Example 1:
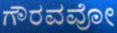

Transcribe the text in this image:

ಗೌರವವೋ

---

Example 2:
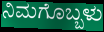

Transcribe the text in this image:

ನಿಮಗೊಬ್ಬಳು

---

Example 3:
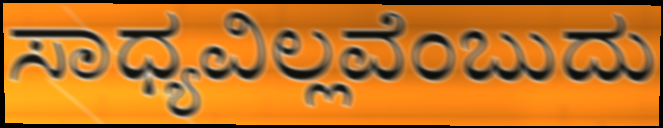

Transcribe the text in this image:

ಸಾಧ್ಯವಿಲ್ಲವೆಂಬುದು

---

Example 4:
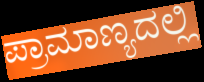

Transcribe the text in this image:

ಪ್ರಾಮಾಣ್ಯದಲ್ಲಿ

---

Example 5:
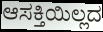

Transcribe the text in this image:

ಆಸಕ್ತಿಯಿಲ್ಲದ